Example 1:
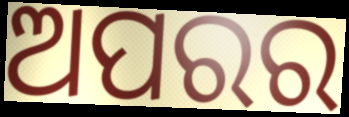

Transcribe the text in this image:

ଅପରର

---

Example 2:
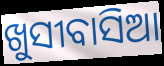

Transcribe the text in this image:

ଖୁସୀବାସିଆ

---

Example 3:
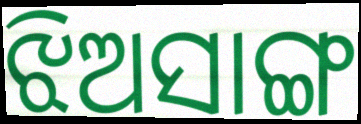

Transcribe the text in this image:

ଝିଅସାଙ୍ଗ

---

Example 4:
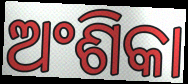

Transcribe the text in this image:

ଅଂଶିକା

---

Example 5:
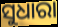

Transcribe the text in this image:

ସୁଧାରା